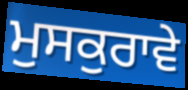
ਮੁਸਕੁਰਾਵੇ